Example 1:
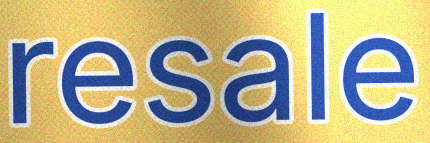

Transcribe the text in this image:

resale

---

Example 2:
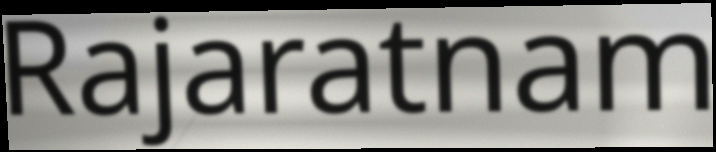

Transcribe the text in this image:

Rajaratnam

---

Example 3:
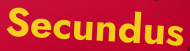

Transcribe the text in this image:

Secundus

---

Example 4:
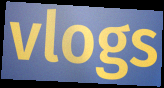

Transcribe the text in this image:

vlogs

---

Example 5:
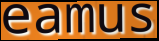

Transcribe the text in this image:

eamus